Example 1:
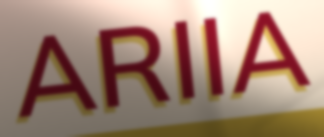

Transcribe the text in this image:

ARIIA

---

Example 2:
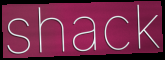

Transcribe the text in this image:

shack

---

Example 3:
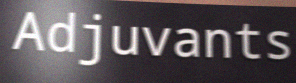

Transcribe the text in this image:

Adjuvants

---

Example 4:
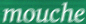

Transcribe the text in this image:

mouche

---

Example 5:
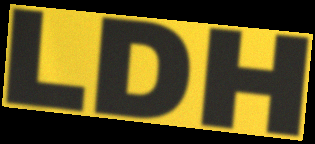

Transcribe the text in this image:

LDH